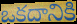
ఒకదానికి